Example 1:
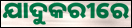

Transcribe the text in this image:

ଯାଦୁକରୀରେ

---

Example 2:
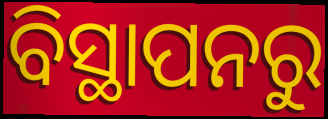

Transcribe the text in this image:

ବିସ୍ଥାପନରୁ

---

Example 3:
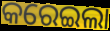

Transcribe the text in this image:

କରେଇଲା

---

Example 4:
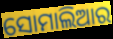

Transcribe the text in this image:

ସୋମାଲିଆର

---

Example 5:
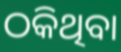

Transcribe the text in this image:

ଠକିଥିବା